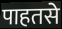
पाहतसे